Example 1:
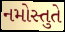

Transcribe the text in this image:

નમોસ્તુતે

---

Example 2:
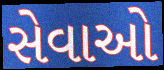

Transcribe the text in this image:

સેવાઓ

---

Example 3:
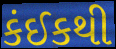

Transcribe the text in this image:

કંઈકથી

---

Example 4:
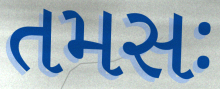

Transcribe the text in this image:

તમસઃ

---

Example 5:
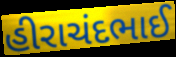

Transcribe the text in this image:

હીરાચંદભાઈ